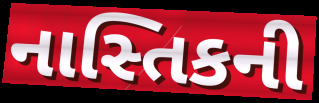
નાસ્તિકની